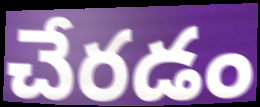
చేరడం